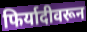
फिर्यादीवरून